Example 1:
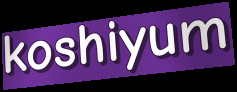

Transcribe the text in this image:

koshiyum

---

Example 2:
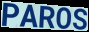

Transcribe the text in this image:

PAROS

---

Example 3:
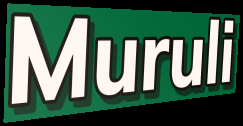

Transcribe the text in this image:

Muruli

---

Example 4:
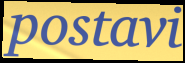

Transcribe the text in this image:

postavi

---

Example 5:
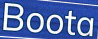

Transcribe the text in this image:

Boota